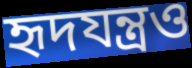
হৃদযন্ত্রও